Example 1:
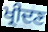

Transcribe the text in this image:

ਖ੍ਰੀਦਣ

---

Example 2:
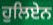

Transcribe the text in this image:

ਹੁਲਿਏਨ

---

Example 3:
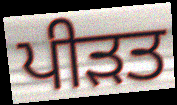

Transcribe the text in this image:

ਪੀਡ਼ਤ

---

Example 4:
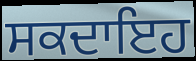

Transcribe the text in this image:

ਸਕਦਾਇਹ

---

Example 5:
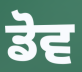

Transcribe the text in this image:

ਡੋਵ